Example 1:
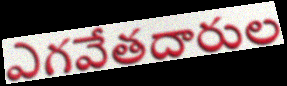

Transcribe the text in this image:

ఎగవేతదారుల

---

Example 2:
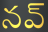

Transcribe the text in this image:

నవ్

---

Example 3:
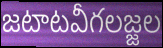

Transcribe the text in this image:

జటాటవీగలజ్జల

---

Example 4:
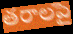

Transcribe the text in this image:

తరాలపై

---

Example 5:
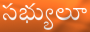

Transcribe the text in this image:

సభ్యులూ